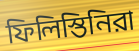
ফিলিস্তিনিরা